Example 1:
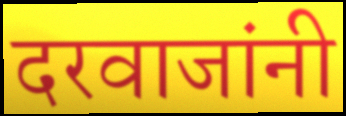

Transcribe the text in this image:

दरवाजांनी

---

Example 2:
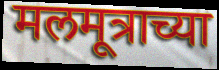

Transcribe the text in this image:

मलमूत्राच्या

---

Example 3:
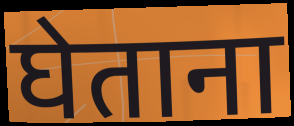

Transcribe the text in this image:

घेताना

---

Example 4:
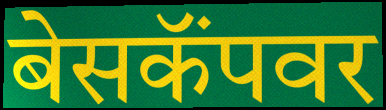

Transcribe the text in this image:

बेसकॅंपवर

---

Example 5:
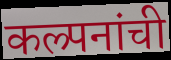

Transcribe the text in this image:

कल्पनांची